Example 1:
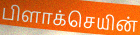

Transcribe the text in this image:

பிளாக்செயின்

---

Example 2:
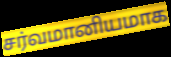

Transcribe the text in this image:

சர்வமானியமாக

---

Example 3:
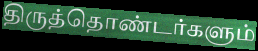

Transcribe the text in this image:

திருத்தொண்டர்களும்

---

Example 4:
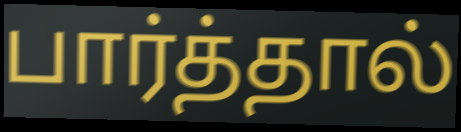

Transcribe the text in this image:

பார்த்தால்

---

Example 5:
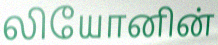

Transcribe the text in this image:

லியோனின்